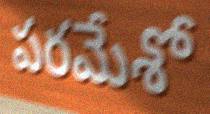
పరమేశో